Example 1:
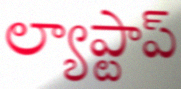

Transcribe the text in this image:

ల్యాప్టాప్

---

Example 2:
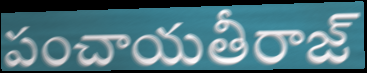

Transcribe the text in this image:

పంచాయతీరాజ్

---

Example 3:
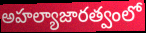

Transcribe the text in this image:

అహల్యాజారత్వంలో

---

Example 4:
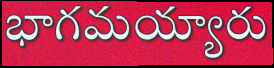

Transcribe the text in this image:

భాగమయ్యారు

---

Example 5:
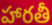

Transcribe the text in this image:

హారతీ